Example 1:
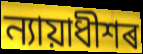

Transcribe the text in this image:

ন্যায়াধীশৰ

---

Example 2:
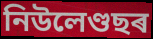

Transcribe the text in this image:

নিউলেণ্ডছৰ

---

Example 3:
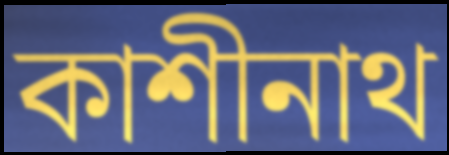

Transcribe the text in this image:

কাশীনাথ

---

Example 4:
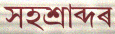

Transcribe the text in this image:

সহশ্ৰাব্দৰ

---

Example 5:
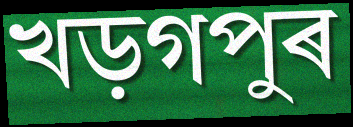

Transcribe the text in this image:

খড়গপুৰ